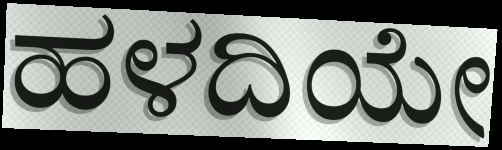
ಹಳದಿಯೇ